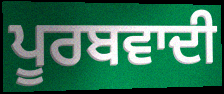
ਪੂਰਬਵਾਦੀ